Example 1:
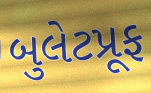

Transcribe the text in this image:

બુલેટપ્રૂફ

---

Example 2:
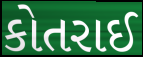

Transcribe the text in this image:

કોતરાઈ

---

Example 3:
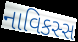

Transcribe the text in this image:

નાવિકસ્સ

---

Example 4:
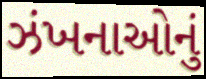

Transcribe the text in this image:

ઝંખનાઓનું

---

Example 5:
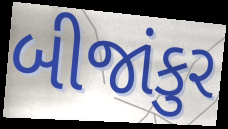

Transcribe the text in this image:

બીજાંકુર